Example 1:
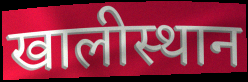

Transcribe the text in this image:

खालीस्थान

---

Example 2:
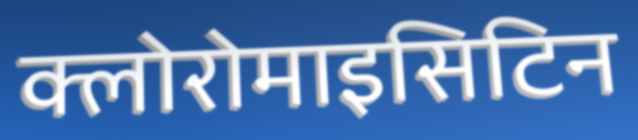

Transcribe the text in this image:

क्लोरोमाइसिटिन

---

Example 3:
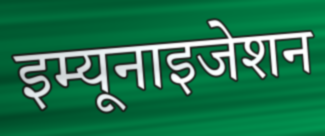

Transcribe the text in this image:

इम्यूनाइजेशन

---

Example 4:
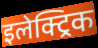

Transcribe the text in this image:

इलेक्ट्रिक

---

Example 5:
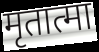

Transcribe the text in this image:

मृतात्मा